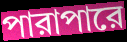
পারাপারে